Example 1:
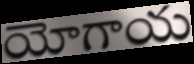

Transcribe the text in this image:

యోగాయ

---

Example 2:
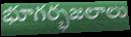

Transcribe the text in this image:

భూగర్భజలాలు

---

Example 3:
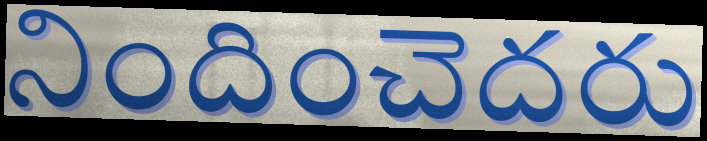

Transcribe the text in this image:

నిందించెదరు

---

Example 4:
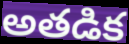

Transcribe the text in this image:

అతడిక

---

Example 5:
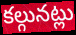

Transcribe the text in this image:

కల్గునట్లు